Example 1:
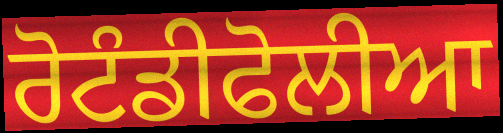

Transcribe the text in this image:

ਰੋਟੰਡੀਫੋਲੀਆ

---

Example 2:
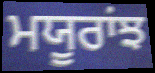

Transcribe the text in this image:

ਮਯੂਰਾਂਝ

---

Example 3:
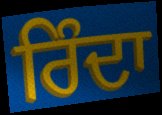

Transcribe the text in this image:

ਰਿੰਦਾ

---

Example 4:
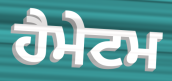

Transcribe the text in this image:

ਹੈਮੇਟਮ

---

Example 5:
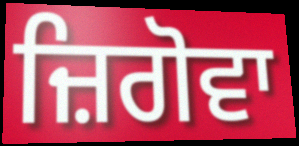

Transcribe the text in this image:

ਜ਼ਿਗੋਵਾ